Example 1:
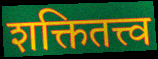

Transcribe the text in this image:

शक्तितत्त्व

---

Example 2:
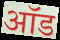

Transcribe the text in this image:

ऑड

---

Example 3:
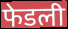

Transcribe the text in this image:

फेडली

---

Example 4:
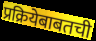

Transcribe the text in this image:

प्रक्रियेबाबतची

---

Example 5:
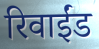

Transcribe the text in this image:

रिवाईंड